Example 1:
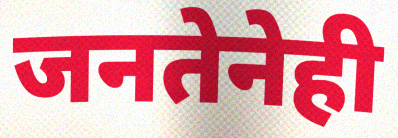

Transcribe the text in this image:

जनतेनेही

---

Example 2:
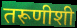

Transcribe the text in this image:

तरूणीशी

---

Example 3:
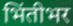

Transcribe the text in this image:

भिंतीभर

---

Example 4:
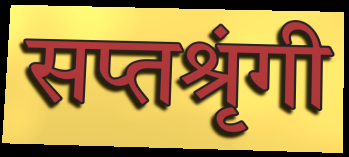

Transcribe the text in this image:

सप्तश्रृंगी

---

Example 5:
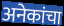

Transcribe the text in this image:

अनेकांचा